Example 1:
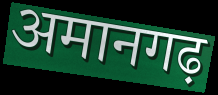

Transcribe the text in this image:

अमानगढ़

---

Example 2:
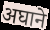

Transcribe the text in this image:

अघाने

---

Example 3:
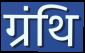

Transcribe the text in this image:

ग्रंथि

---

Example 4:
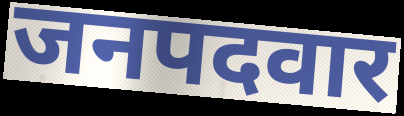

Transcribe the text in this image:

जनपदवार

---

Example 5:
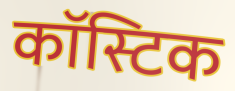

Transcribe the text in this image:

कॉस्टिक